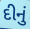
દીનું